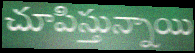
చూపిస్తున్నాయి